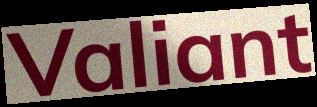
Valiant